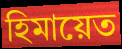
হিমায়েত